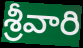
శ్రీవారి